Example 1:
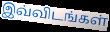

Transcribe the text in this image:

இவ்விடங்கள்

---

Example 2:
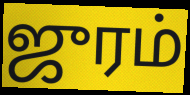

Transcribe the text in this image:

ஜுரம்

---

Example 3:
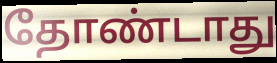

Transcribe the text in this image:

தோண்டாது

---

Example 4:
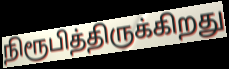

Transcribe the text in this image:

நிரூபித்திருக்கிறது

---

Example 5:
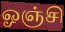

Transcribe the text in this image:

ஓஞ்சி